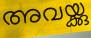
അവയ്ക്കു